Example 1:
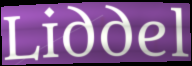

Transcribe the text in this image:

Liddel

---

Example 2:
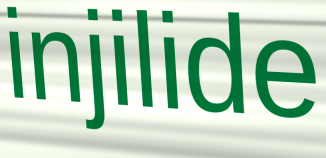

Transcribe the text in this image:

injilide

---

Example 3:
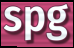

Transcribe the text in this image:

spg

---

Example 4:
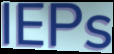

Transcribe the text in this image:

IEPs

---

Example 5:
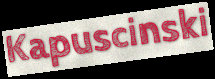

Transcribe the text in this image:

Kapuscinski